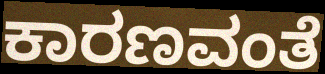
ಕಾರಣವಂತೆ